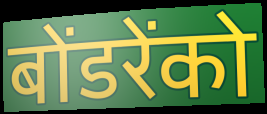
बोंडरेंको